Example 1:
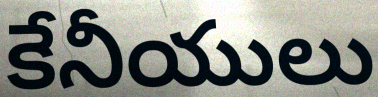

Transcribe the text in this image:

కేనీయులు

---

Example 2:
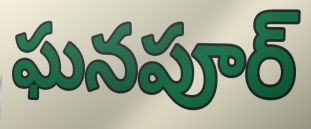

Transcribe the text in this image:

ఘనపూర్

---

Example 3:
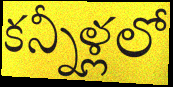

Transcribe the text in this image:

కన్నీళ్లలో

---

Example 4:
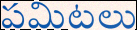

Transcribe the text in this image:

పమిటలు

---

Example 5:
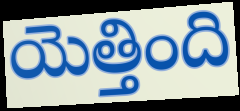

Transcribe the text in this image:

యెత్తింది